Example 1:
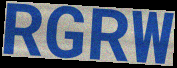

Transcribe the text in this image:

RGRW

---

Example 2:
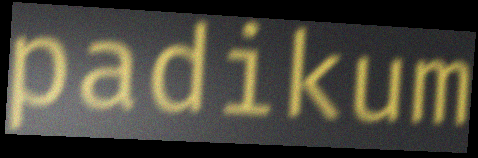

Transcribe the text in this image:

padikum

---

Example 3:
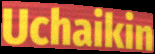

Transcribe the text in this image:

Uchaikin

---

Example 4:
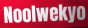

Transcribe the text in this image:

Noolwekyo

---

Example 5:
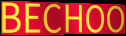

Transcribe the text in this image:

BECHOO